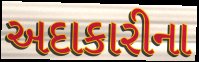
અદાકારીના